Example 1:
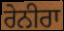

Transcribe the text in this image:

ਰੇਨੀਰਾ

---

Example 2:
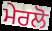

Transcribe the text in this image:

ਮੇਰਲੋ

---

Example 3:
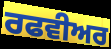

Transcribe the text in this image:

ਰਫਵੀਅਰ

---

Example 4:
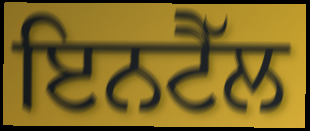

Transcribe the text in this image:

ਇਨਟੈੱਲ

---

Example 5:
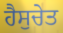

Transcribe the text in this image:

ਹੈਸੁਚੇਤ